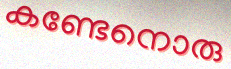
കണ്ടേനൊരു